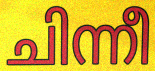
ചിന്നീ